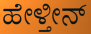
ಹೇಳ್ತೀನ್